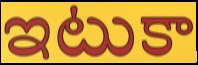
ఇటుకా